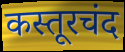
कस्तूरचंद